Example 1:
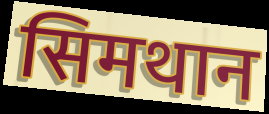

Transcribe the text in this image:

सिमथान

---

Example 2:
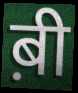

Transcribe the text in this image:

ब़ी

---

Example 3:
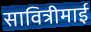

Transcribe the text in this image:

सावित्रीमाई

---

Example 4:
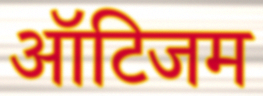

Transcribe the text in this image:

ऑटिजम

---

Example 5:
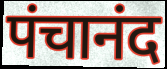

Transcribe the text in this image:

पंचानंद